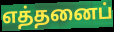
எத்தனைப்